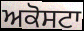
ਅਕੋਸਟਾ